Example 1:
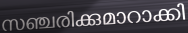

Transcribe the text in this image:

സഞ്ചരിക്കുമാറാക്കി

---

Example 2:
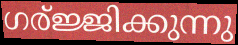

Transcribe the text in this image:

ഗര്ജ്ജിക്കുന്നു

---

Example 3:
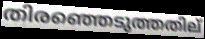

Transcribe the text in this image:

തിരഞ്ഞെടുത്തതില്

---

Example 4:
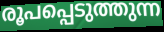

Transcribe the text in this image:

രൂപപ്പെടുത്തുന്ന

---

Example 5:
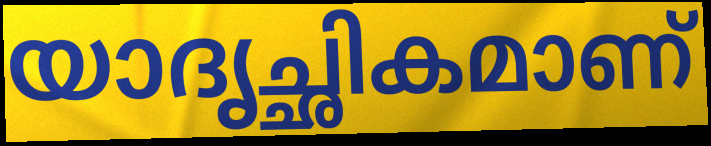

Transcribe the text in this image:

യാദൃച്ഛികമാണ്